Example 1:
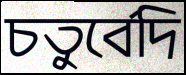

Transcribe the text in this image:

চতুর্বেদি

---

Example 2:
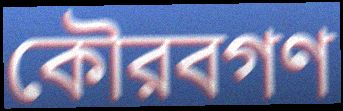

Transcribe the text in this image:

কৌরবগণ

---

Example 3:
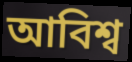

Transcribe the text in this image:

আবিশ্ব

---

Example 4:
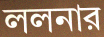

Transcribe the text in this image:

ললনার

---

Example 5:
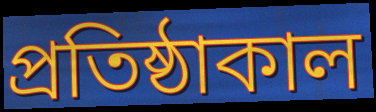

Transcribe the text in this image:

প্রতিষ্ঠাকাল